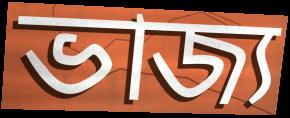
ভাজ্য